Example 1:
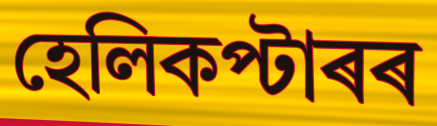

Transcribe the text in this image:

হেলিকপ্টাৰৰ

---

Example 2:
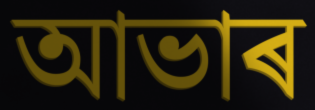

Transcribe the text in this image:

আভাৰ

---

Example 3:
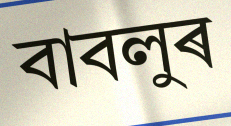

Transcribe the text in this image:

বাবলুৰ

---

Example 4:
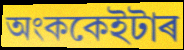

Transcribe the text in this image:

অংককেইটাৰ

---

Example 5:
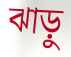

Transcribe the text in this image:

ঝাড়ু